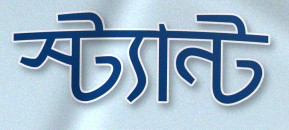
স্ট্যান্ট